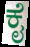
ಕೈ